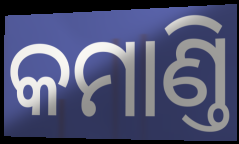
କମାଣ୍ତି